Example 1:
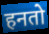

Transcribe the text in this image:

हनतो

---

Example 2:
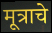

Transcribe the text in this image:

मूत्राचे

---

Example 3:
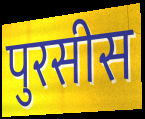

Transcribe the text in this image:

पुरसीस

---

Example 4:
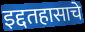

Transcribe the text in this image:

इद्दतहासाचे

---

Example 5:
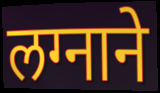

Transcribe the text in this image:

लग्नाने